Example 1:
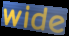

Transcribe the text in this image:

wide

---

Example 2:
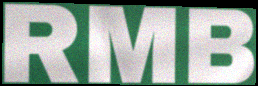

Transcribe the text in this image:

RMB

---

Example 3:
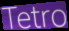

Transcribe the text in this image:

Tetro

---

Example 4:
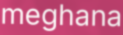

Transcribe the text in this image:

meghana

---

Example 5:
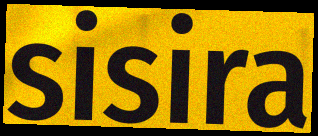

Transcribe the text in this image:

sisira